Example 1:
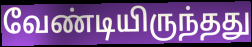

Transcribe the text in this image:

வேண்டியிருந்தது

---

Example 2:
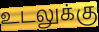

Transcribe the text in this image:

உடலுக்கு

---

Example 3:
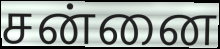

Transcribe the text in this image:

சன்னை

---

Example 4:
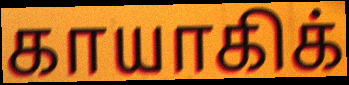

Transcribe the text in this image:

காயாகிக்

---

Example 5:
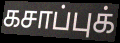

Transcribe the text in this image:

கசாப்புக்